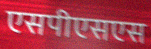
एसपीएसएस